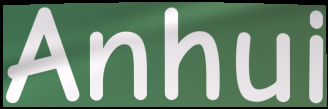
Anhui